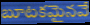
బూటకమైనవే